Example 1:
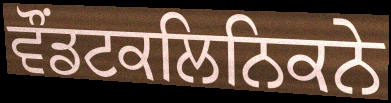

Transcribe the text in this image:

ਵੌਂਡਟਕਲਿਨਿਕਨੇ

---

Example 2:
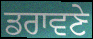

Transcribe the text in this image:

ਡਰਾਵਣੇ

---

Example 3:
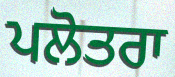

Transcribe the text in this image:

ਪਲੋਤਰਾ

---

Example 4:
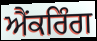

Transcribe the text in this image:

ਐਂਕਰਿੰਗ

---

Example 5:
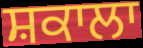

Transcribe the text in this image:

ਸ਼ਕਾਲਾ